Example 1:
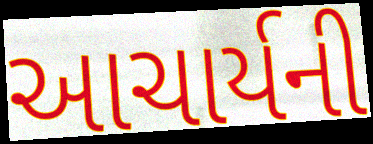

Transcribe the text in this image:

આચાર્યની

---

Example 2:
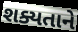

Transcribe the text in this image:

શક્યતાને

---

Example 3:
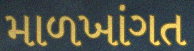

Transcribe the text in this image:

માળખાંગત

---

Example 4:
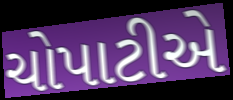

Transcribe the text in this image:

ચોપાટીએ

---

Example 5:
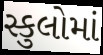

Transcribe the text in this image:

સ્કુલોમાં